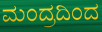
ಮಂದ್ರದಿಂದ